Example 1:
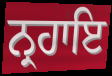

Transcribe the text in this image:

ਨ੍ਰਹਾਇ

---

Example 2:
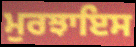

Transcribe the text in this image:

ਮੁਰਝਾਇਸ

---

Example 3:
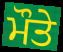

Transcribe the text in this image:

ਮੌਤੇ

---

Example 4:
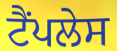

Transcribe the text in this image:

ਟੈਂਪਲੇਸ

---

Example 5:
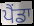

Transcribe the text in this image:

ਪੈਂਡਾ